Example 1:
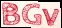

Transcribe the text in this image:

BGv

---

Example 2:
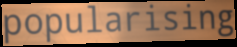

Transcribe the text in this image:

popularising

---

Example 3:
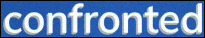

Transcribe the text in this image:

confronted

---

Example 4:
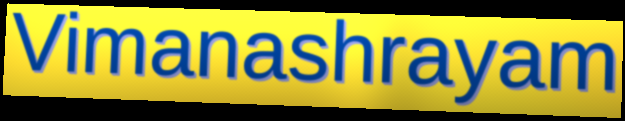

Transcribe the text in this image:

Vimanashrayam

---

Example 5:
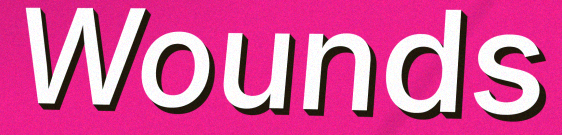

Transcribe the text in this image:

Wounds